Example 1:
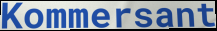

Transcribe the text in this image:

Kommersant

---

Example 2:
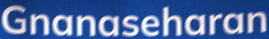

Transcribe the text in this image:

Gnanaseharan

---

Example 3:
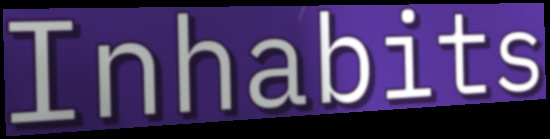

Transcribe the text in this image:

Inhabits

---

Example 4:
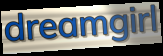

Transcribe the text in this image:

dreamgirl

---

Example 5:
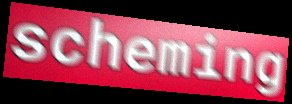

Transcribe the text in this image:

scheming